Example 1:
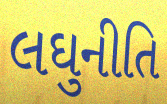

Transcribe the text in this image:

લઘુનીતિ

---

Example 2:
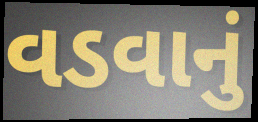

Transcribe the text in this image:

વડવાનું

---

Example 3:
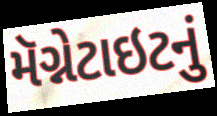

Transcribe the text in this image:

મૅગ્નેટાઇટનું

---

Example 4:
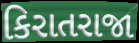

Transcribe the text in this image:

કિરાતરાજા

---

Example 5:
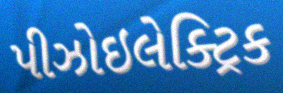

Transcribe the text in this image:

પીઝોઇલેક્ટ્રિક